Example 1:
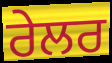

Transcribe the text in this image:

ਰੇਲਰ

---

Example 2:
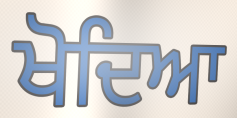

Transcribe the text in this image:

ਖੋਦਿਆ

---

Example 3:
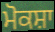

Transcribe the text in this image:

ਮੋਕਸ਼ਾ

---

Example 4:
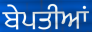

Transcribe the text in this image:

ਬੇਪਤੀਆਂ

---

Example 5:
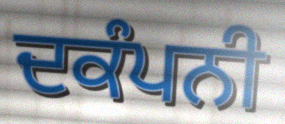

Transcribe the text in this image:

ਦਕੰਪਨੀ